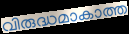
വിരുദ്ധമാകാത്ത